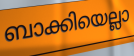
ബാക്കിയെല്ലാ